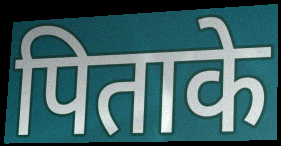
पिताके